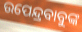
ଉପେନ୍ଦ୍ରବାବୁଙ୍କ